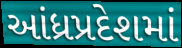
આંધ્રપ્રદેશમાં